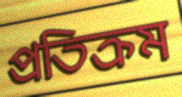
প্ৰতিক্ৰম